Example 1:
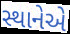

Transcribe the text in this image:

સ્થાનેએ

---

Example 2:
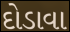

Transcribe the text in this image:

દોડાવા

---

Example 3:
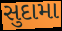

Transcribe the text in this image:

સુદામા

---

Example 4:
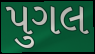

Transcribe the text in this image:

પુગલ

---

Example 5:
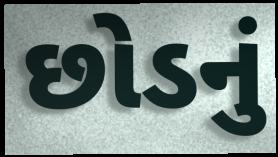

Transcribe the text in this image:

છોડનું